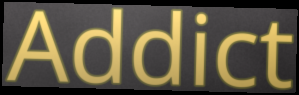
Addict